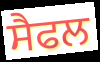
ਸੈਫਲ